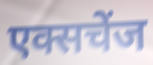
एक्सचेंज